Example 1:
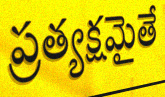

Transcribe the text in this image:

ప్రత్యక్షమైతే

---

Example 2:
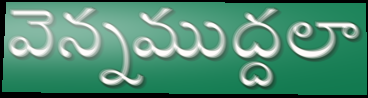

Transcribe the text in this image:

వెన్నముద్దలా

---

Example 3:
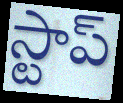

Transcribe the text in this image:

స్టాప్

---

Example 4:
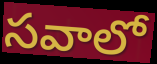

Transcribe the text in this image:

సవాలో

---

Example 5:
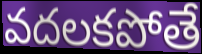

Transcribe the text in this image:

వదలకపోతే